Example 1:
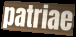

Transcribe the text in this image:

patriae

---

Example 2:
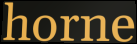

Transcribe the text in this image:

horne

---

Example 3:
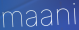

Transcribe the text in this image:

maani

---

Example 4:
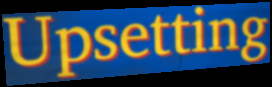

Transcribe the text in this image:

Upsetting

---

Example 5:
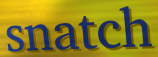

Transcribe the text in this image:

snatch